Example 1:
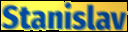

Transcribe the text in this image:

Stanislav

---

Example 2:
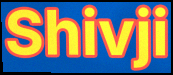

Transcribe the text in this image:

Shivji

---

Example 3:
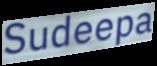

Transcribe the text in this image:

Sudeepa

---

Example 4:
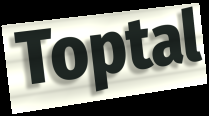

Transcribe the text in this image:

Toptal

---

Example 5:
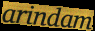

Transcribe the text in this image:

arindam